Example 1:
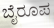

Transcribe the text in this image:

ಬೈರೂಪ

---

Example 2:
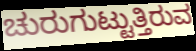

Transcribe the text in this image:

ಚುರುಗುಟ್ಟುತ್ತಿರುವ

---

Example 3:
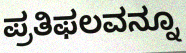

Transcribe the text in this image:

ಪ್ರತಿಫಲವನ್ನೂ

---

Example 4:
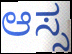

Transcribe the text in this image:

ಆಸ್ಸ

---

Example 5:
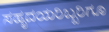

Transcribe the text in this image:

ಸಹೃದಯರಿಬ್ಬರಿಗೂ